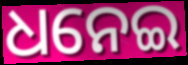
ଧନେଇ